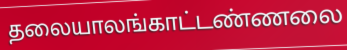
தலையாலங்காட்டண்ணலை